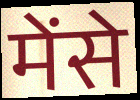
मेंसे